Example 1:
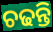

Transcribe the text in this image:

ଚଢନ୍ତି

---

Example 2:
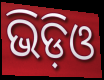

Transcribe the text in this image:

ଭିଡ଼ିଓ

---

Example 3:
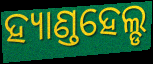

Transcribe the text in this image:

ହ୍ୟାଣ୍ଡହେଲ୍ଡ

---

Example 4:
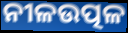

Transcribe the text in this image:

ନୀଳଉତ୍ପଳ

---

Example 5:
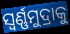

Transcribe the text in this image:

ସ୍ଵର୍ଣ୍ଣମୁଦ୍ରାକୁ